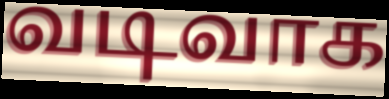
வடிவாக